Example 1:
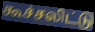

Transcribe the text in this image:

கூச்சலிட்டு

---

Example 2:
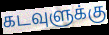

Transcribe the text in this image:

கடவுளுக்கு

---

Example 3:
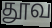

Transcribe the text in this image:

தூவ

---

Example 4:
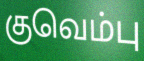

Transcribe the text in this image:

குவெம்பு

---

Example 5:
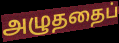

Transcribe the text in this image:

அழுததைப்